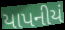
યાપનીયં